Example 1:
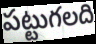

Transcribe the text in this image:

పట్టుగలది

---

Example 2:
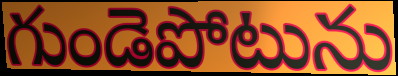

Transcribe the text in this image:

గుండెపోటును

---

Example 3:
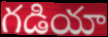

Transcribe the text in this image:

గడియా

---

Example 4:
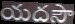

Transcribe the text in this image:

యదసౌ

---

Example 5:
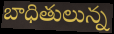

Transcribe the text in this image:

బాధితులున్న